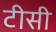
टीसी